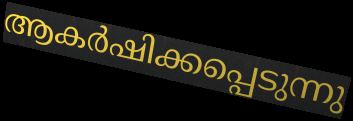
ആകർഷിക്കപ്പെടുന്നു